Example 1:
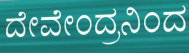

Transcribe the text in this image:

ದೇವೇಂದ್ರನಿಂದ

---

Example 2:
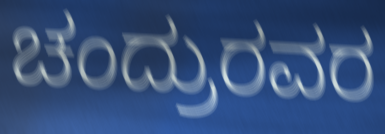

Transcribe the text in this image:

ಚಂದ್ರುರವರ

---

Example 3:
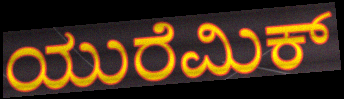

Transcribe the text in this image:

ಯುರೆಮಿಕ್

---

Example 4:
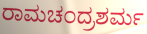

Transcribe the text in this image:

ರಾಮಚಂದ್ರಶರ್ಮ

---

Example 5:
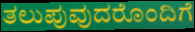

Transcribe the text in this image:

ತಲುಪುವುದರೊಂದಿಗೆ